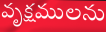
వృక్షములను